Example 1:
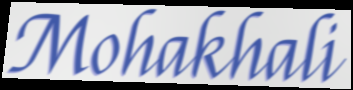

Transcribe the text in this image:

Mohakhali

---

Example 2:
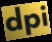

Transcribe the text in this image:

dpi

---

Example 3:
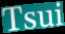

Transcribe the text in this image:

Tsui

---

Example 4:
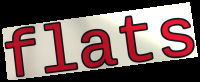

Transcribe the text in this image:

flats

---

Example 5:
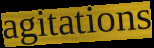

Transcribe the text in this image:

agitations